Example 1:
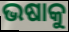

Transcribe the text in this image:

ଭଷାକୁ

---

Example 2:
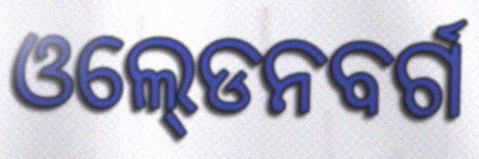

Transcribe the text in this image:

ଓଲ୍‍ଡେନବର୍ଗ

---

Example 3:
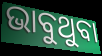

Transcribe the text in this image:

ଭାବୁଥୁବା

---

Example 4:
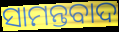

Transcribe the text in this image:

ସାମନ୍ତବାଦ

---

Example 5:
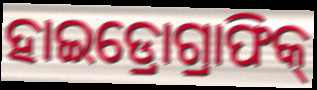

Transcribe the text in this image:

ହାଇଡ୍ରୋଗ୍ରାଫିକ୍